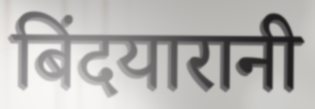
बिंदयारानी